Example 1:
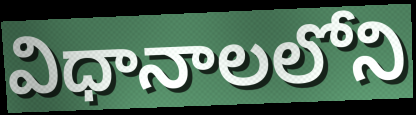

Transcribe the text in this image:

విధానాలలోని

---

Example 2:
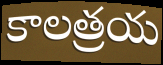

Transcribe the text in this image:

కాలత్రయ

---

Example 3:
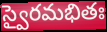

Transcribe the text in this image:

స్వైరమభితః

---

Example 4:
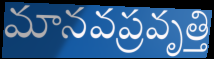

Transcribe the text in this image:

మానవప్రవృత్తి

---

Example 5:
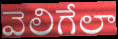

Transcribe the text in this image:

వెలిగేలా